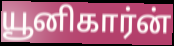
யூனிகார்ன்